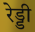
रेड्डी